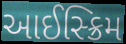
આઈસ્ક્રિમ